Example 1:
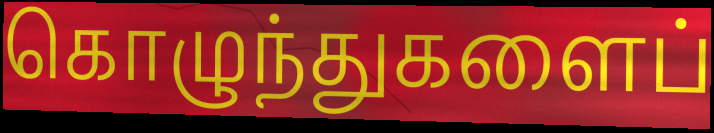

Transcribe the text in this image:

கொழுந்துகளைப்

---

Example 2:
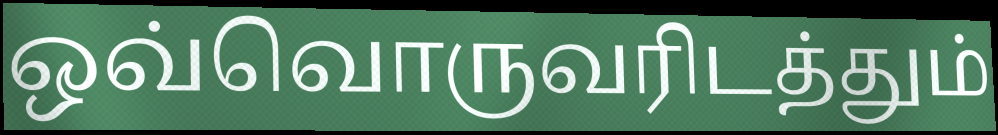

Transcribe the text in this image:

ஒவ்வொருவரிடத்தும்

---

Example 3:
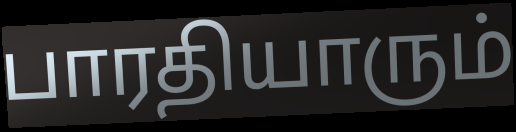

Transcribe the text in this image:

பாரதியாரும்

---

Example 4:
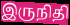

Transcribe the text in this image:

இருநிதி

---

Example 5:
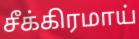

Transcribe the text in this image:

சீக்கிரமாய்